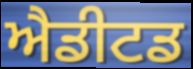
ਐਡੀਟਡ